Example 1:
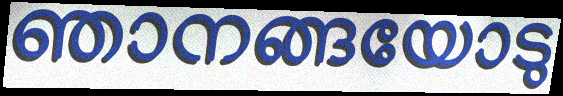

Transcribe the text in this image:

ഞാനങ്ങയോടു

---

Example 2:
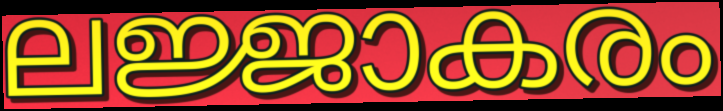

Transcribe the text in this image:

ലജ്ജാകരം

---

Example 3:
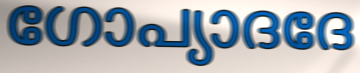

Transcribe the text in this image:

ഗോപ്യാദദേ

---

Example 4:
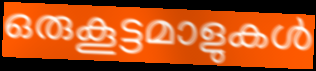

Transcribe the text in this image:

ഒരുകൂട്ടമാളുകൾ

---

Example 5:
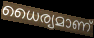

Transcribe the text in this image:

ധൈര്യമാണ്